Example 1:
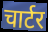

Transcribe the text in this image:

चार्टर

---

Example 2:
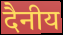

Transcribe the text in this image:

दैनीय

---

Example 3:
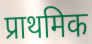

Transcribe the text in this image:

प्राथमिक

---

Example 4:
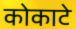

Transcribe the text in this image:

कोकाटे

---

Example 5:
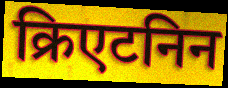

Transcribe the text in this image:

क्रिएटनिन